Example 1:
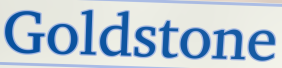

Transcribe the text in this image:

Goldstone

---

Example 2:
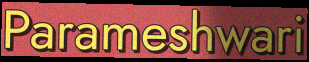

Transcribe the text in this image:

Parameshwari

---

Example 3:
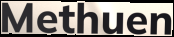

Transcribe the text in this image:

Methuen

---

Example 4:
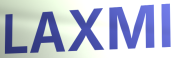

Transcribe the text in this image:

LAXMI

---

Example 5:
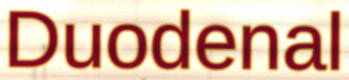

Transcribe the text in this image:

Duodenal